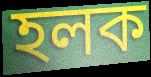
হলক